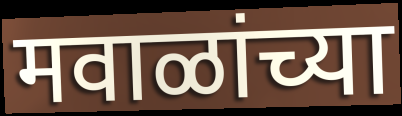
मवाळांच्या